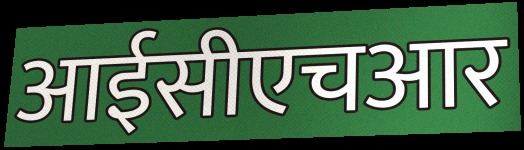
आईसीएचआर